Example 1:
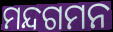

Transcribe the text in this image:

ମନ୍ଦଗମନ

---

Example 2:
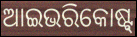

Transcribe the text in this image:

ଆଇଭରିକୋଷ୍ଟ୍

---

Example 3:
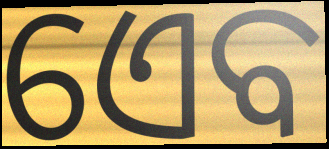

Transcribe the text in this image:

ଏେବ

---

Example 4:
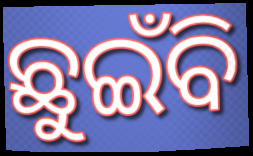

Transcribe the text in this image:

ଛୁଇଁବି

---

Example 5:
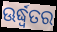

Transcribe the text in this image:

ଊର୍ଦ୍ଧ୍ଵତର